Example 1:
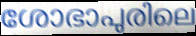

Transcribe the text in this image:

ശോഭാപുരിലെ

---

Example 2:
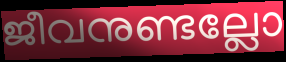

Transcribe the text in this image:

ജീവനുണ്ടല്ലോ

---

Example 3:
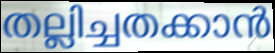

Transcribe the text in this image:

തല്ലിച്ചതക്കാൻ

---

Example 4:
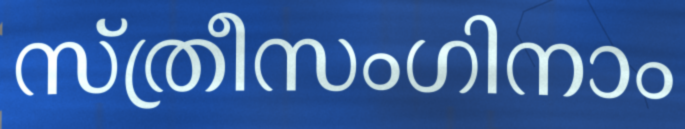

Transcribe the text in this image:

സ്ത്രീസംഗിനാം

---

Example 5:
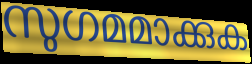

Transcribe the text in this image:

സുഗമമാക്കുക